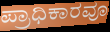
ಪ್ರಾಧಿಕಾರವೂ